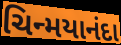
ચિન્મયાનંદા